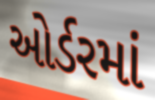
ઓર્ડરમાં